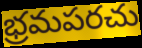
భ్రమపరచు